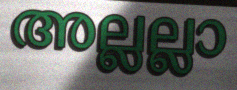
അല്ലല്ലാ